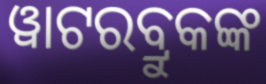
ୱାଟରବ୍ରୁକଙ୍କ